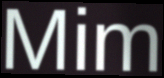
Mim